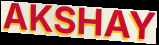
AKSHAY